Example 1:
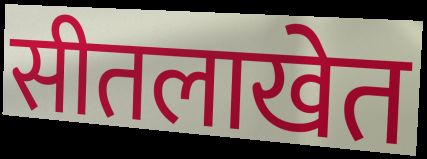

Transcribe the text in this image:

सीतलाखेत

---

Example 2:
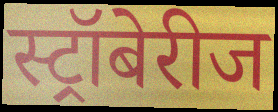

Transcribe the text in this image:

स्ट्रॉबेरीज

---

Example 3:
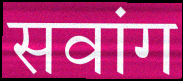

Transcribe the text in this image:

सवांग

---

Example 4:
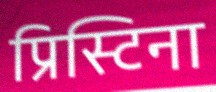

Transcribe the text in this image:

प्रिस्टिना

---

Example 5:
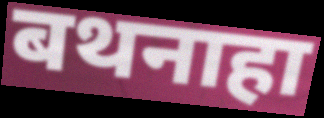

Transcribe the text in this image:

बथनाहा